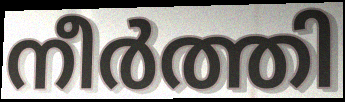
നീർത്തി